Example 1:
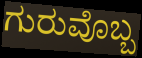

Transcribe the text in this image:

ಗುರುವೊಬ್ಬ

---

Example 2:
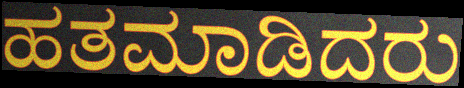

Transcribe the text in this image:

ಹತಮಾಡಿದರು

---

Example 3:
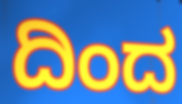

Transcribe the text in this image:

ದಿಂದ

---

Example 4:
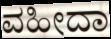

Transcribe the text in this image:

ವಹೀದಾ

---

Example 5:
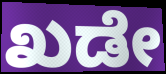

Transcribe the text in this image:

ಖಡೇ